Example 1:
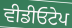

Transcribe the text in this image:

ਵੀਡੀਓਟੇਪ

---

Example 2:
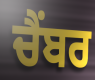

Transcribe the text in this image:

ਚੈਂਬਰ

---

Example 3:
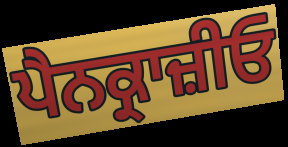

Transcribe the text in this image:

ਪੈਨਕ੍ਰਾਜ਼ੀਓ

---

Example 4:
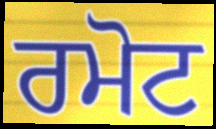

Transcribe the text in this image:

ਰਮੋਟ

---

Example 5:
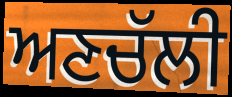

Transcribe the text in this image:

ਅਣਚੱਲੀ